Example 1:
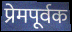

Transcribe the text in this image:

प्रेमपूर्वक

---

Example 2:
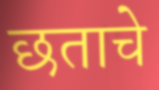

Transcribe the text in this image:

छताचे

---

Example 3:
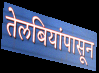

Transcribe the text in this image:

तेलबियांपासून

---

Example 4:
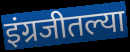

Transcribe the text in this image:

इंग्रजीतल्या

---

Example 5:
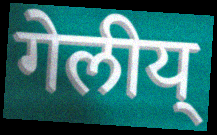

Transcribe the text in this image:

गेलीय्